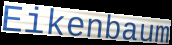
Eikenbaum